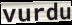
vurdu